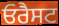
ਓਰੈਸਟ